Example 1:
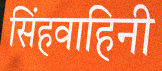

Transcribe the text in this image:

सिंहवाहिनी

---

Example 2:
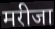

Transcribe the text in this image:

मरीजा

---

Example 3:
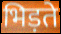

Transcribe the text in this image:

भिड़ते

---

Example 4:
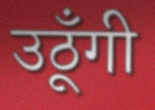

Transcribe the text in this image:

उठूँगी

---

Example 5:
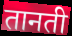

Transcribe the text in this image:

तानती